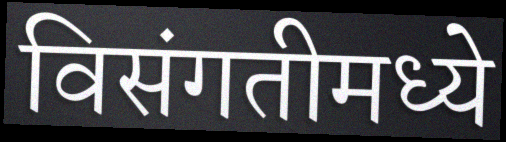
विसंगतीमध्ये